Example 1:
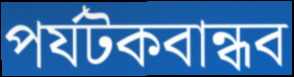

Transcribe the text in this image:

পর্যটকবান্ধব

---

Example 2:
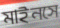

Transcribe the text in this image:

মাইনসে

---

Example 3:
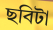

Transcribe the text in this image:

ছবিটা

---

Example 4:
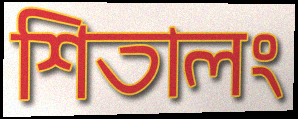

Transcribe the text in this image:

শিতালং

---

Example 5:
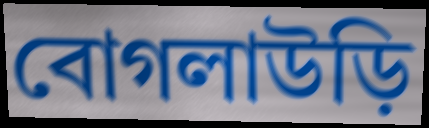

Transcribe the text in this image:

বোগলাউড়ি